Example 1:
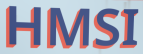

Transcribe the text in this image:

HMSI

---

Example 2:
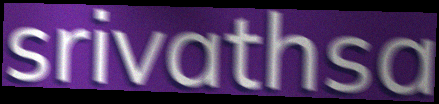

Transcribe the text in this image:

srivathsa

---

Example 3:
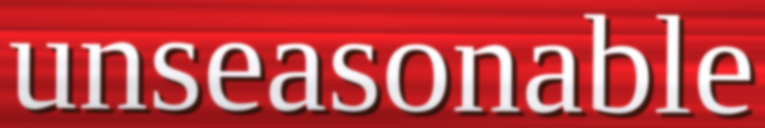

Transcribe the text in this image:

unseasonable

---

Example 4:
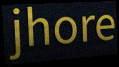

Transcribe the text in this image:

jhore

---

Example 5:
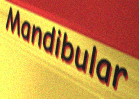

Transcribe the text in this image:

Mandibular